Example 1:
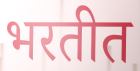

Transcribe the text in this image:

भरतीत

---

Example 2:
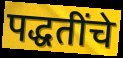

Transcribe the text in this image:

पद्धतींचे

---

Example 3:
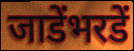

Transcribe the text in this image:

जाडेंभरडें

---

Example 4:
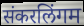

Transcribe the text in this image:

संकरलिंगम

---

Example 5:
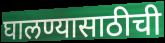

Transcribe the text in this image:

घालण्यासाठीची